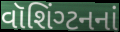
વૉશિંગ્ટનનાં